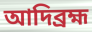
আদিব্রহ্ম